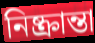
নিষ্ক্রান্তা